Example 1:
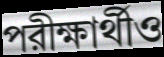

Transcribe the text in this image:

পরীক্ষার্থীও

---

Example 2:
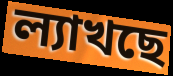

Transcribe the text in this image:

ল্যাখছে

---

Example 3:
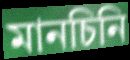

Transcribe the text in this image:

মানচিনি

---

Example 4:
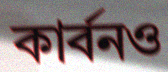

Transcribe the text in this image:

কার্বনও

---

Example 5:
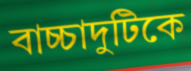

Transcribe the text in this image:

বাচ্চাদুটিকে